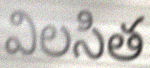
విలసిత